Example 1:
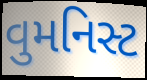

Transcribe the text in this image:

વુમનિસ્ટ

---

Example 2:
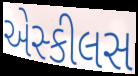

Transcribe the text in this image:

એસ્કીલસ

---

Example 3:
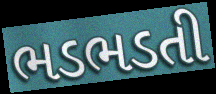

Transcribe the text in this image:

ભડભડતી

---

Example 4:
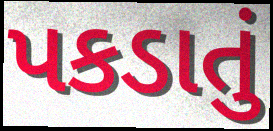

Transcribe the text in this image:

પકડાતું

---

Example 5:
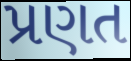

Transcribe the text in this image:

પ્રણત